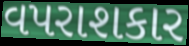
વપરાશકાર